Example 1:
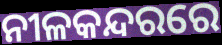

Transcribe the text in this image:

ନୀଳକନ୍ଦରରେ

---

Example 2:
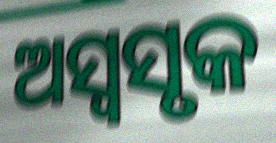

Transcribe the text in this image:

ଅସ୍ୱସୃକ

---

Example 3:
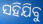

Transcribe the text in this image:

ସହିଯିବୁ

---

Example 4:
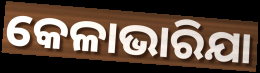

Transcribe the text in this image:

କେଳାଭାରିଯା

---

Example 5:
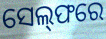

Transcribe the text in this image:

ସେଲ୍‌ଫରେ